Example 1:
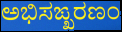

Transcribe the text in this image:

ಅಭಿಸಙ್ಖರಣಂ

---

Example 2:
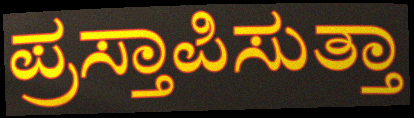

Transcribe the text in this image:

ಪ್ರಸ್ತಾಪಿಸುತ್ತಾ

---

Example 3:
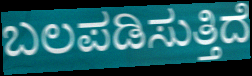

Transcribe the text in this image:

ಬಲಪಡಿಸುತ್ತಿದೆ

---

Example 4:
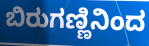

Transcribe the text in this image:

ಬಿರುಗಣ್ಣಿನಿಂದ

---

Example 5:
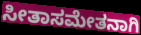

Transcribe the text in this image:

ಸೀತಾಸಮೇತನಾಗಿ